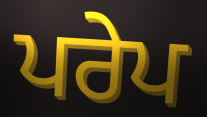
ਪਰੇਪ